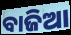
ବାଜିଆ